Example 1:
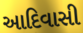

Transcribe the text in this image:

આદિવાસી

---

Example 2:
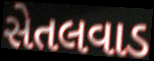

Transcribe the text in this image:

સેતલવાડ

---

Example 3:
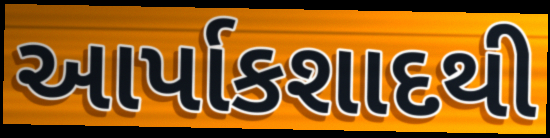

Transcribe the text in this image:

આર્પાકશાદથી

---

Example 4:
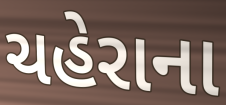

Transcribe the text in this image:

ચહેરાના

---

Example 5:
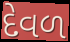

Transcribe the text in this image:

દેવળ